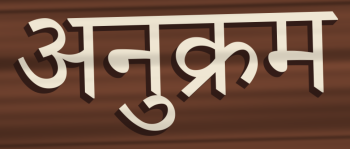
अनुक्रम